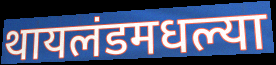
थायलंडमधल्या